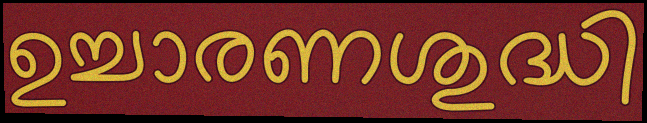
ഉച്ചാരണശുദ്ധി